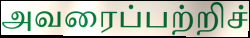
அவரைப்பற்றிச்